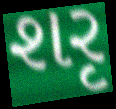
શરૃ